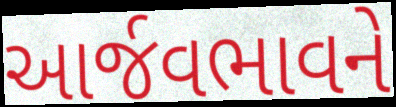
આર્જવભાવને